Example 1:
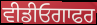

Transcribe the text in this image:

ਵੀਡੀਓਗਾਫਰ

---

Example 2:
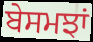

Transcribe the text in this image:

ਬੇਸਮਝਾਂ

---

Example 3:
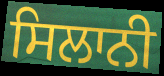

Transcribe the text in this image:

ਸਿਲਾਨੀ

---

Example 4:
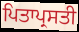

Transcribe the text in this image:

ਪਿਤਾਪ੍ਰਸਤੀ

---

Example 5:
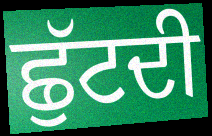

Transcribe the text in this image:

ਛੁੱਟਦੀ